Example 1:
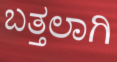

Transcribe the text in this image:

ಬತ್ತಲಾಗಿ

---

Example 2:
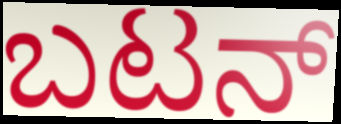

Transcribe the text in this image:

ಬಟನ್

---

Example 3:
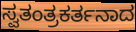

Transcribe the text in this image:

ಸ್ವತಂತ್ರಕರ್ತನಾದ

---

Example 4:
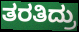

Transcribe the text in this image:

ತರತಿದ್ರು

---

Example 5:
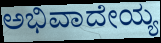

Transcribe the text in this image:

ಅಭಿವಾದೇಯ್ಯ